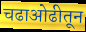
चढाओढीतून